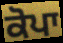
ਕੋਪਾ